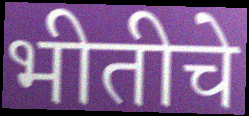
भीतीचे